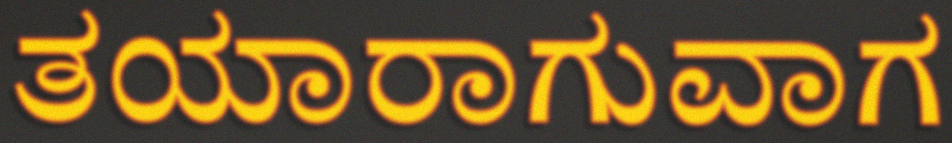
ತಯಾರಾಗುವಾಗ